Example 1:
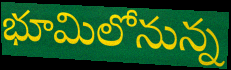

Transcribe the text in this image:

భూమిలోనున్న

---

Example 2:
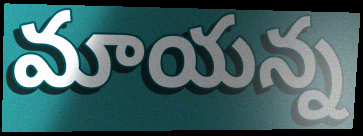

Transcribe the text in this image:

మాయన్న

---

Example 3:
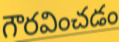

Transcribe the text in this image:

గౌరవించడం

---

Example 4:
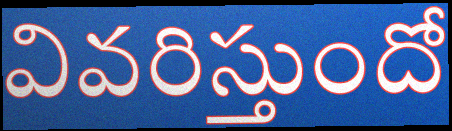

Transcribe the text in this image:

వివరిస్తుందో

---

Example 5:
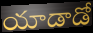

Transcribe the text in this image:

యాడాడో